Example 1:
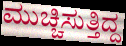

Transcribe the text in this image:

ಮುಚ್ಚಿಸುತ್ತಿದ್ದ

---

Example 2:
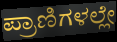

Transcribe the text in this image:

ಪ್ರಾಣಿಗಳಲ್ಲೇ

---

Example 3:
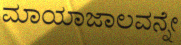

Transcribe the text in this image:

ಮಾಯಾಜಾಲವನ್ನೇ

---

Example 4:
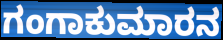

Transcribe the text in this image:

ಗಂಗಾಕುಮಾರನ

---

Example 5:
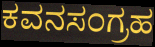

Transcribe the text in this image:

ಕವನಸಂಗ್ರಹ